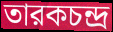
তারকচন্দ্র